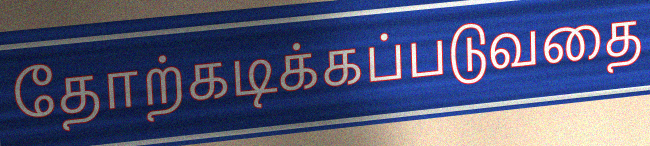
தோற்கடிக்கப்படுவதை